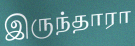
இருந்தாரா